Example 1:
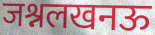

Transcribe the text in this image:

जश्नलखनऊ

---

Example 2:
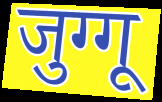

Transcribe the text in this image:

जुग्गू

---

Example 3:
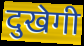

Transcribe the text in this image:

दुखेगी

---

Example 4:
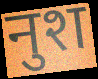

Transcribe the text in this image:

नुश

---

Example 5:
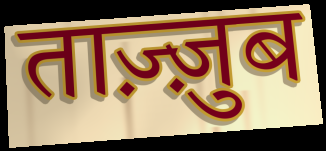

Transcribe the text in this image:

ताज़्ज़ुब